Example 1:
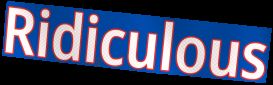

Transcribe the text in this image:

Ridiculous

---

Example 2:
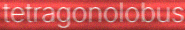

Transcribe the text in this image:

tetragonolobus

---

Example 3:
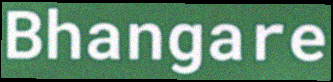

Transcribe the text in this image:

Bhangare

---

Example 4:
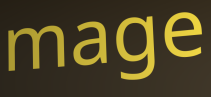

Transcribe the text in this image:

mage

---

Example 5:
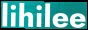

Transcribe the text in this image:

lihilee